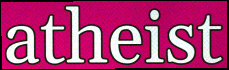
atheist